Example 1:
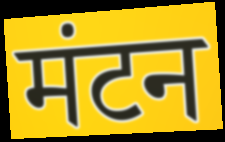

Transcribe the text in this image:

मंटन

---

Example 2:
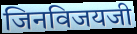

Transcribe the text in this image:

जिनविजयजी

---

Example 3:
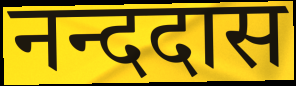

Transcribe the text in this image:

नन्ददास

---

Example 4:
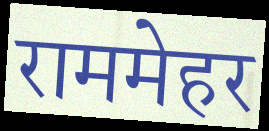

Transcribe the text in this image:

राममेहर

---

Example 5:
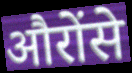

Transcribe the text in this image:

औरोंसे